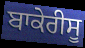
ਬਾਕੇਰੀਸੂ